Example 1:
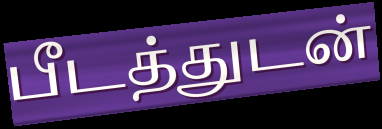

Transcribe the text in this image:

பீடத்துடன்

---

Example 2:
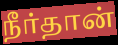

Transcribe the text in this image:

நீர்தான்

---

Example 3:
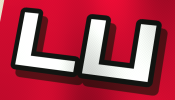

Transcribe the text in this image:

டப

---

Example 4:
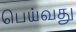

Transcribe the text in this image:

பெய்வது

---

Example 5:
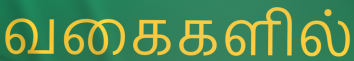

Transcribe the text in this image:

வகைகளில்